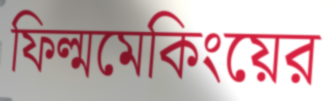
ফিল্মমেকিংয়ের